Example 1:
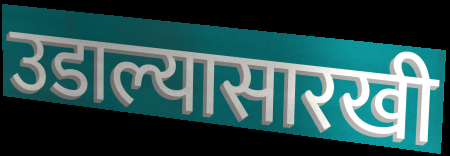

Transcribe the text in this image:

उडाल्यासारखी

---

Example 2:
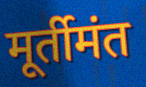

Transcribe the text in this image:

मूर्तीमंत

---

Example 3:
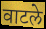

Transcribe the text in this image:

वाटले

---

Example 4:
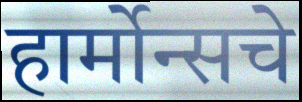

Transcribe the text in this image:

हार्मोन्सचे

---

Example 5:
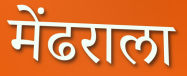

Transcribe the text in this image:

मेंढराला